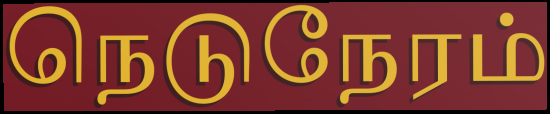
நெடுநேரம்